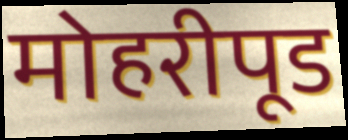
मोहरीपूड